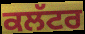
ਕਲੱਟਰ